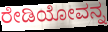
ರೇಡಿಯೋವನ್ನ